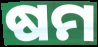
ଷମ